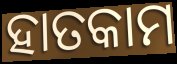
ହାତକାମ